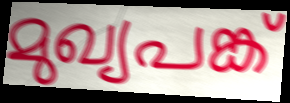
മുഖ്യപങ്ക്